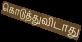
கொடுத்துவிடாது